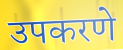
उपकरणे